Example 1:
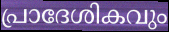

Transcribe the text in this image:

പ്രാദേശികവും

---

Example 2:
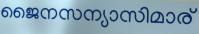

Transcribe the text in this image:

ജൈനസന്യാസിമാര്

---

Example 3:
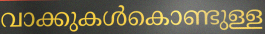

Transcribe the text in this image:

വാക്കുകൾകൊണ്ടുള്ള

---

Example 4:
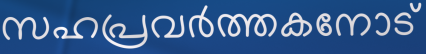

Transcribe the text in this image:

സഹപ്രവർത്തകനോട്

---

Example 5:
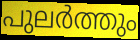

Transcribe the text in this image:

പുലർത്തും